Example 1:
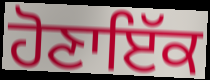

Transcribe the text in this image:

ਹੋਣਾਇੱਕ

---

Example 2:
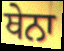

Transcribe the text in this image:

ਥੇਨਾ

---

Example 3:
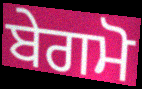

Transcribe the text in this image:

ਬੇਗਮੋ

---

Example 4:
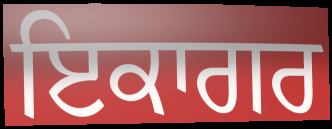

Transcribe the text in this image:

ਇਕਾਗਰ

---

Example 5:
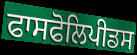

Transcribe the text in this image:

ਫਾਸਫੋਲਿਪੀਡਸ